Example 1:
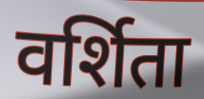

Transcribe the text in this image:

वर्शिता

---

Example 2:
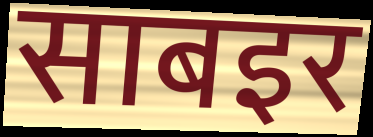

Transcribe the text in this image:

साबइर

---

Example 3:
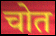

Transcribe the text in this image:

चोत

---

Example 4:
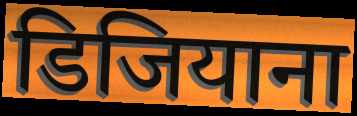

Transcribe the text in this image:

डिजियाना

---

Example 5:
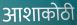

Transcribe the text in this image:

आशाकोठी